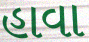
હાવા